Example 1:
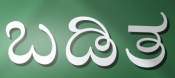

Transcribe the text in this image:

ಬಡಿತ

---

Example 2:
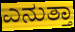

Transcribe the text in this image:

ಎನುತ್ತಾ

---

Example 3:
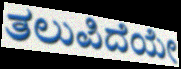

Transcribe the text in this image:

ತಲುಪಿದೆಯೇ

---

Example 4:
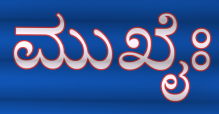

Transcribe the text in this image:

ಮುಖೈಃ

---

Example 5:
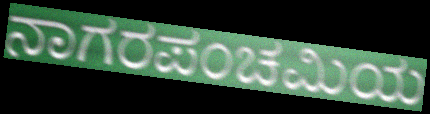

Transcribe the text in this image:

ನಾಗರಪಂಚಮಿಯ